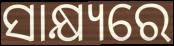
ସାକ୍ଷ୍ୟରେ